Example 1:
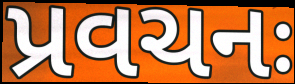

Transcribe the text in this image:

પ્રવચનઃ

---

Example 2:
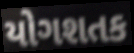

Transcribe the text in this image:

યોગશતક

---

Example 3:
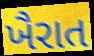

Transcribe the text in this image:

ખૈરાત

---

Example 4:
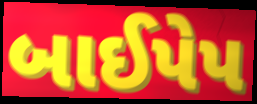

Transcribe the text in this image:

બાઈપેપ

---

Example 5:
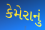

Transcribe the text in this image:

કેમેરાનું